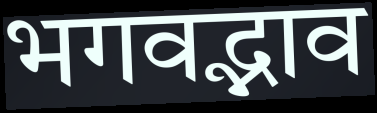
भगवद्भाव